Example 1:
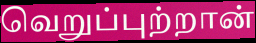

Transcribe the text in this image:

வெறுப்புற்றான்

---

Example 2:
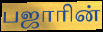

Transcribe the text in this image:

பஜாரின்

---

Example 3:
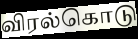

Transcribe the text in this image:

விரல்கொடு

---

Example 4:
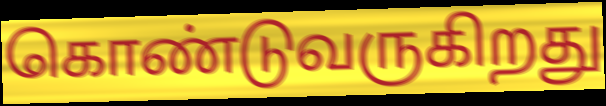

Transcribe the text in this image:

கொண்டுவருகிறது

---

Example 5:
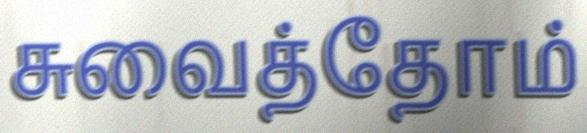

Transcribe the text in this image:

சுவைத்தோம்